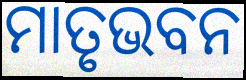
ମାତୃଭବନ